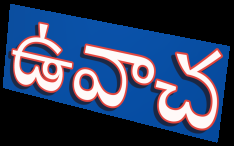
ఉవాచ